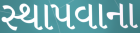
સ્થાપવાના